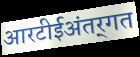
आरटीईअंतर्गत